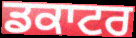
ਡਕਾਟਰ